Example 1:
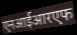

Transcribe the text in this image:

एनआईआरएफ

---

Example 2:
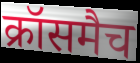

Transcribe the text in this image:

क्रॉसमैच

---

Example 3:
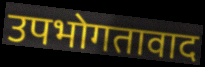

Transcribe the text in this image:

उपभोगतावाद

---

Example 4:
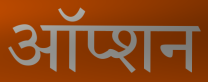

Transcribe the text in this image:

ऑप्शन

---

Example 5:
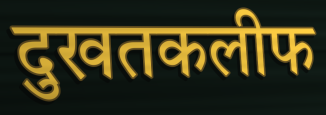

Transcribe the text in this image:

दुखतकलीफ